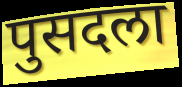
पुसदला